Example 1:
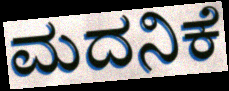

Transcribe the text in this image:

ಮದನಿಕೆ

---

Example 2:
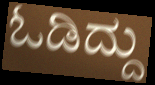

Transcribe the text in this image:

ಓಡಿದ್ದು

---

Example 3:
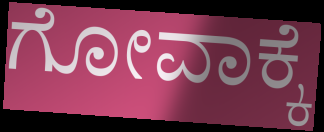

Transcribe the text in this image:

ಗೋವಾಕ್ಕೆ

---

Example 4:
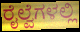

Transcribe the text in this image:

ರೈಲ್ವೆಗಳಲ್ಲಿ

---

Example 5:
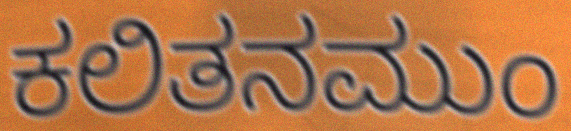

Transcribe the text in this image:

ಕಲಿತನಮುಂ